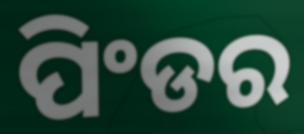
ପିଂଡର